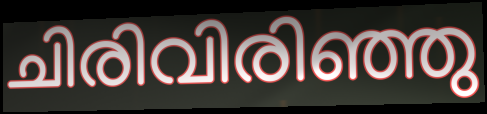
ചിരിവിരിഞ്ഞു